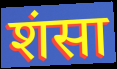
शंसा